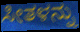
ಸೀತಳನ್ನು